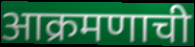
आक्रमणाची